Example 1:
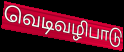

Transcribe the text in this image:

வெடிவழிபாடு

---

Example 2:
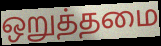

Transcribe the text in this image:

ஒறுத்தமை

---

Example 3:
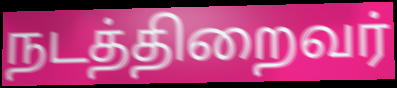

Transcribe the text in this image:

நடத்திறைவர்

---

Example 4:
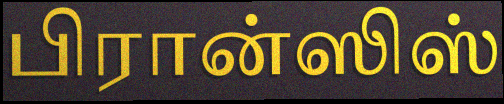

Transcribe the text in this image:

பிரான்ஸிஸ்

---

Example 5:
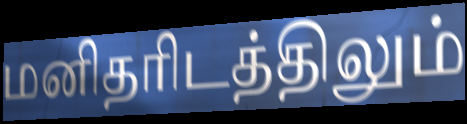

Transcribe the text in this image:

மனிதரிடத்திலும்